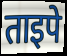
ताइपे